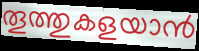
തൂത്തുകളയാൻ